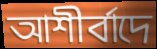
আশীর্বাদে